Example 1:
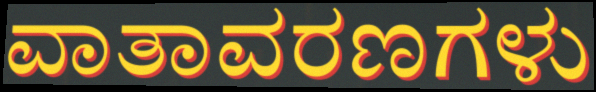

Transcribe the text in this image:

ವಾತಾವರಣಗಳು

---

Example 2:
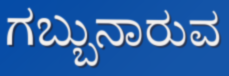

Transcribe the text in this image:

ಗಬ್ಬುನಾರುವ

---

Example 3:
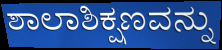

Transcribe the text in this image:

ಶಾಲಾಶಿಕ್ಷಣವನ್ನು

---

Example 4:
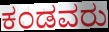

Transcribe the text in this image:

ಕಂಡವರು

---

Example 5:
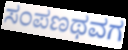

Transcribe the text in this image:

ಸಂಪಣಥವಗ